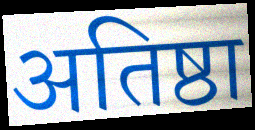
अतिष्ठा